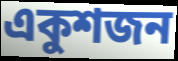
একুশজন